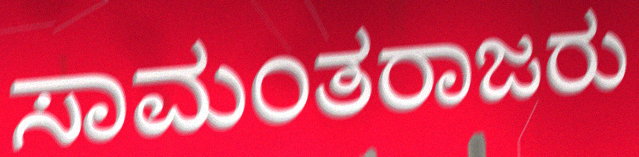
ಸಾಮಂತರಾಜರು